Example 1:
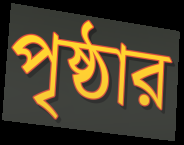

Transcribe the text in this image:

পৃষ্ঠার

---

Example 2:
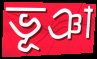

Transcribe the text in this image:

ভূঞা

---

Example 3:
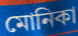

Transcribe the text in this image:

মোনিকা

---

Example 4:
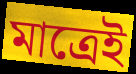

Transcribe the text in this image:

মাত্রেই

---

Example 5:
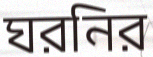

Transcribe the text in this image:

ঘরনির